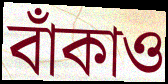
বাঁকাও